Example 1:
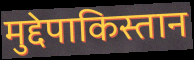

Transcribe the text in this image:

मुद्देपाकिस्तान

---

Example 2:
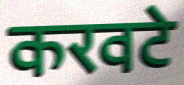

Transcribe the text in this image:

करवटे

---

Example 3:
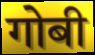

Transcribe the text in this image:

गोबी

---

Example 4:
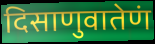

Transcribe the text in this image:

दिसाणुवातेणं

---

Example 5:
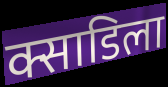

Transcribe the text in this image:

क्साडिला